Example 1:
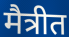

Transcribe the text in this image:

मैत्रीत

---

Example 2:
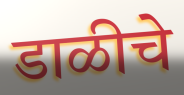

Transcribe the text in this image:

डाळीचे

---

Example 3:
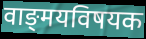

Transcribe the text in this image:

वाङ्मयविषयक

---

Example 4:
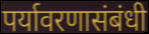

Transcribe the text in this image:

पर्यावरणासंबंधी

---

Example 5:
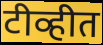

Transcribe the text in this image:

टीव्हीत